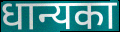
धान्यका